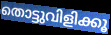
തൊട്ടുവിളിക്കൂ